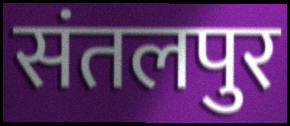
संतलपुर